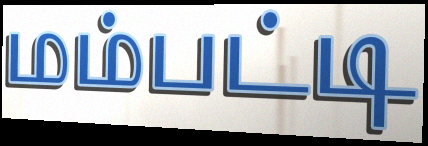
மம்பட்டி